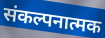
संकल्पनात्मक